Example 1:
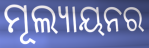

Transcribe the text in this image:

ମୂଲ୍ୟାୟନର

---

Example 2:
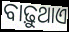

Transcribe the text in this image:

ବାଢ଼ୁଥାଏ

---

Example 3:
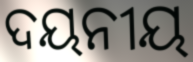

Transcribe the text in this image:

ଦୟନୀୟ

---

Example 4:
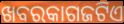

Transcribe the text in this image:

ଖବରକାଗଜଟିଏ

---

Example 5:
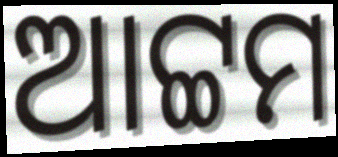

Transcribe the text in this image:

ଆଟ୍ଟମ